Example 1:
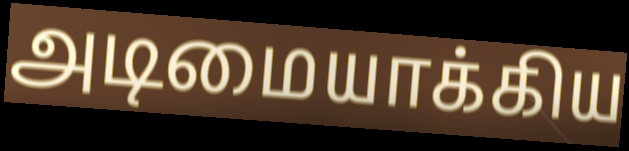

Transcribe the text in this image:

அடிமையாக்கிய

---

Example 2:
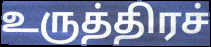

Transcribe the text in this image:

உருத்திரச்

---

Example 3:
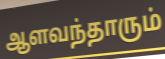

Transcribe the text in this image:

ஆளவந்தாரும்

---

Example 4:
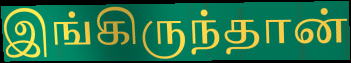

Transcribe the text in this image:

இங்கிருந்தான்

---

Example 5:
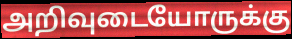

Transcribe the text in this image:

அறிவுடையோருக்கு